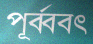
পূর্ব্ববৎ